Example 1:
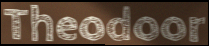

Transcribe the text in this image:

Theodoor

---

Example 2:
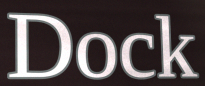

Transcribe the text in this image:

Dock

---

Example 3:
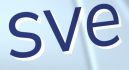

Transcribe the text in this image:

sve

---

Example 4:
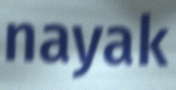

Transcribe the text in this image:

nayak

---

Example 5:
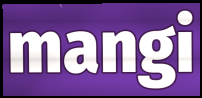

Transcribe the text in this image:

mangi